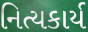
નિત્યકાર્ય